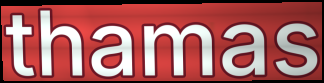
thamas